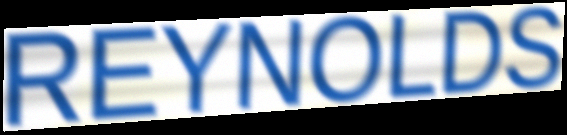
REYNOLDS